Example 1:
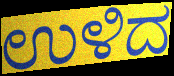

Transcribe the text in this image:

ಉಳಿದ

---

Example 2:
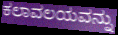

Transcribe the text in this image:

ಕಲಾವಲಯವನ್ನು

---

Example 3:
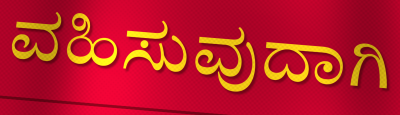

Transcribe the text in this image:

ವಹಿಸುವುದಾಗಿ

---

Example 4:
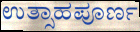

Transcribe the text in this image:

ಉತ್ಸಾಹಪೂರ್ಣ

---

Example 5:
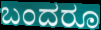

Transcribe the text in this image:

ಬಂದರೂ